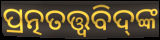
ପ୍ରତ୍ନତତ୍ତ୍ୱବିଦ୍‌ଙ୍କ